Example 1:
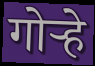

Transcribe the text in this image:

गोऱ्हे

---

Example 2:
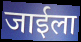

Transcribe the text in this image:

जाईला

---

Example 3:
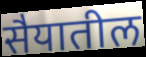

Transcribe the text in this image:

सैयातील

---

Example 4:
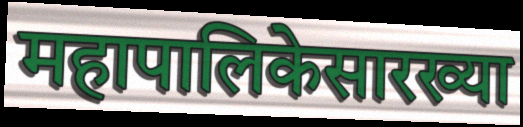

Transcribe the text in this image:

महापालिकेसारख्या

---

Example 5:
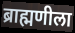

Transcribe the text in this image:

ब्राह्मणीला